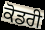
ਕੋਡਰੀ